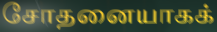
சோதனையாகக்